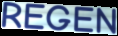
REGEN